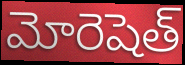
మోరెషెత్